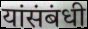
यांसंबंधी